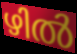
ഴിൽ